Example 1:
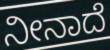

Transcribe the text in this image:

ನೀನಾದೆ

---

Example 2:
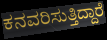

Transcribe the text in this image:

ಕನವರಿಸುತ್ತಿದ್ದಾರೆ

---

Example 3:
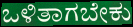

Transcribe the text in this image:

ಒಳಿತಾಗಬೇಕು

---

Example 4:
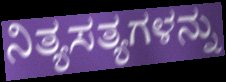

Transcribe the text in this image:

ನಿತ್ಯಸತ್ಯಗಳನ್ನು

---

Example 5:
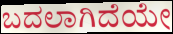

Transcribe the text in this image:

ಬದಲಾಗಿದೆಯೇ